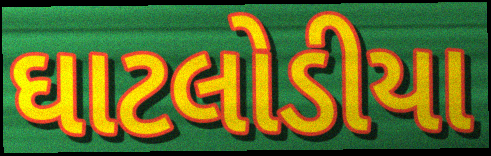
ઘાટલોડીયા